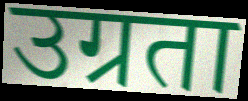
उग्रता